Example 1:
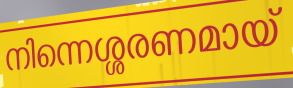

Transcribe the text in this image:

നിന്നെശ്ശരണമായ്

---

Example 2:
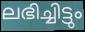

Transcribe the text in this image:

ലഭിച്ചിട്ടും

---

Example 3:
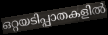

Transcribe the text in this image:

ഒറ്റയടിപ്പാതകളിൽ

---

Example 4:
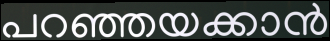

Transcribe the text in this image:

പറഞ്ഞയക്കാൻ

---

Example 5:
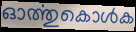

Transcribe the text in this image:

ഓൎത്തുകൊൾക